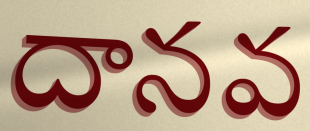
దానవ